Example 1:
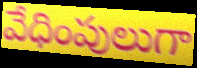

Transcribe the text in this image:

వేధింపులుగా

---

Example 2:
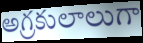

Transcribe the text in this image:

అగ్రకులాలుగా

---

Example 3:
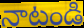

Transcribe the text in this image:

నాటండి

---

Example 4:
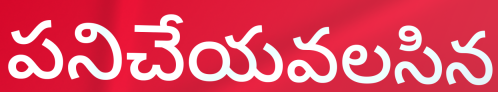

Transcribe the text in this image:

పనిచేయవలసిన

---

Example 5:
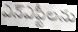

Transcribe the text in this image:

ఎన్ఎఫ్టీలను